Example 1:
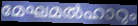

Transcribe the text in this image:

മേഘമൽഹാറും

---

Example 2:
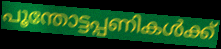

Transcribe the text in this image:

പൂന്തോട്ടപ്പണികൾക്ക്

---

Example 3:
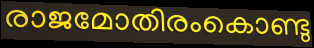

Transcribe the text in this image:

രാജമോതിരംകൊണ്ടു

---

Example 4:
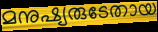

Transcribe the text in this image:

മനുഷ്യരുടേതായ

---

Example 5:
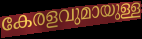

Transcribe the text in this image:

കേരളവുമായുള്ള